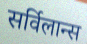
सर्विलान्स